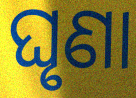
ଘୃଣା